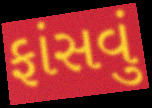
ફાંસવું